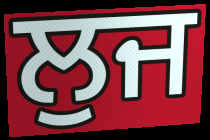
ਲੁਜ